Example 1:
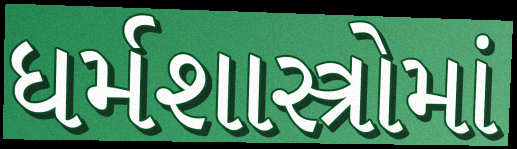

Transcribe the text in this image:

ધર્મશાસ્ત્રોમાં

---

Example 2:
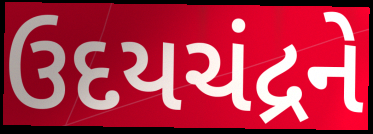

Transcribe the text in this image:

ઉદયચંદ્રને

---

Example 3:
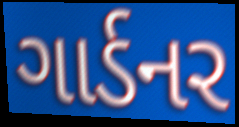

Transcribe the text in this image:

ગાર્ડનર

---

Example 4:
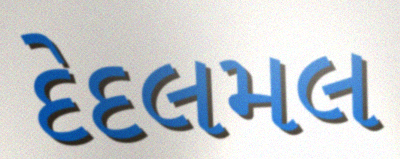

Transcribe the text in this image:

દેદલમલ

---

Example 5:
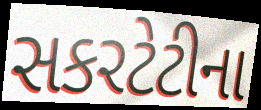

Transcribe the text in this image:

સકરટેટીના